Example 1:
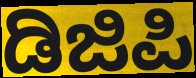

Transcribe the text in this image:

ಡಿಜಿಪಿ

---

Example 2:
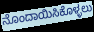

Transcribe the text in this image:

ನೊಂದಾಯಿಸಿಕೊಳ್ಳಲು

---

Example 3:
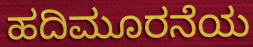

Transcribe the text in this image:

ಹದಿಮೂರನೆಯ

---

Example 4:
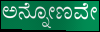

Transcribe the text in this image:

ಅನ್ನೋಣವೇ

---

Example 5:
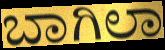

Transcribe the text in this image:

ಬಾಗಿಲಾ